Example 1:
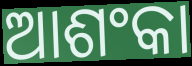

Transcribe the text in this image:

ଆଶଂକା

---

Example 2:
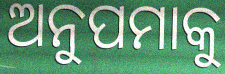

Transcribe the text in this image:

ଅନୁପମାକୁ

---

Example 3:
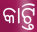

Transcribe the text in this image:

କାଟ୍ତି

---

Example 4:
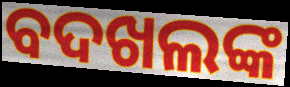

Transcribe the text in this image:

ବଦଖଲଙ୍କ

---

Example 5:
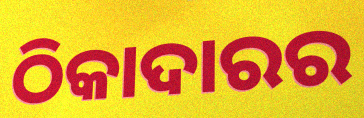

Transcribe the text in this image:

ଠିକାଦାରର